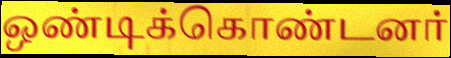
ஒண்டிக்கொண்டனர்